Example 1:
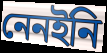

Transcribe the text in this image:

নেনইনি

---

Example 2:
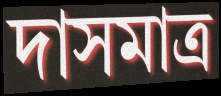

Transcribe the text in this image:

দাসমাত্র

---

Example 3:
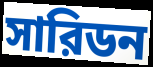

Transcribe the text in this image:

সারিডন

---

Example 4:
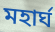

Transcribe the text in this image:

মহার্ঘ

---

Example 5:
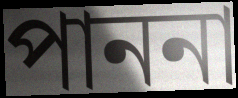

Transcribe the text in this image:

পাননা